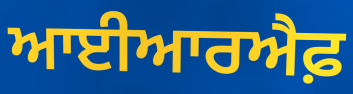
ਆਈਆਰਐਫ਼